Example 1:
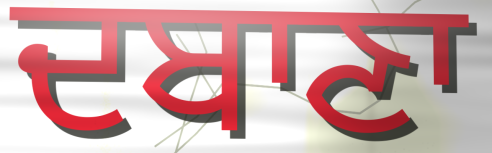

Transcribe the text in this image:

ਦਬਾਣਾ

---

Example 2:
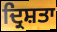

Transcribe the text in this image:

ਦ੍ਰਿਸ਼ਤਾ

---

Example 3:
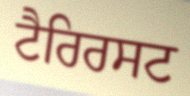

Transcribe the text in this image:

ਟੈਰਿਰਸਟ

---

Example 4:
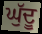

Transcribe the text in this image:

ਘੁੱਦੂ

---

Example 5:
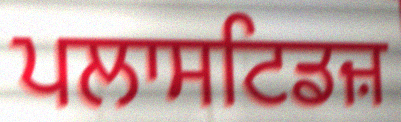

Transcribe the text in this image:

ਪਲਾਸਟਿਡਜ਼